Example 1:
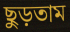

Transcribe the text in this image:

ছুড়তাম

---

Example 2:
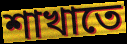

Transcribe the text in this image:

শাখাতে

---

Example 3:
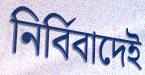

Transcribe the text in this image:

নির্বিবাদেই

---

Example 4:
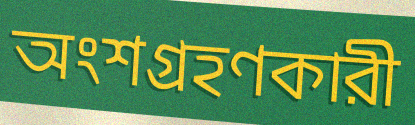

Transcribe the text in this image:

অংশগ্রহণকারী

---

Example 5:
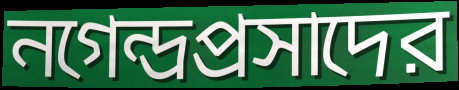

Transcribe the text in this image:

নগেন্দ্রপ্রসাদের